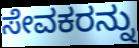
ಸೇವಕರನ್ನು